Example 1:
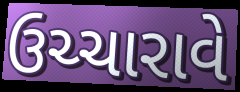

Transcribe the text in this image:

ઉચ્ચારાવે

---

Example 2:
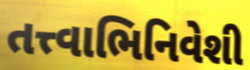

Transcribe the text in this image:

તત્ત્વાભિનિવેશી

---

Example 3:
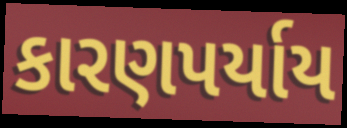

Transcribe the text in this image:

કારણપર્યાય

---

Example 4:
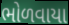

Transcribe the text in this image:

ભોળવાયા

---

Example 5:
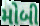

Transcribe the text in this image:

મોબી